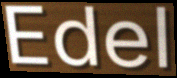
Edel